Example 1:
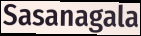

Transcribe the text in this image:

Sasanagala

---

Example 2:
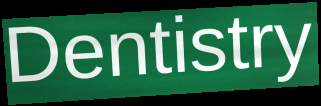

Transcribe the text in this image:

Dentistry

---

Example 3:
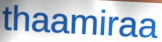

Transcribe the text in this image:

thaamiraa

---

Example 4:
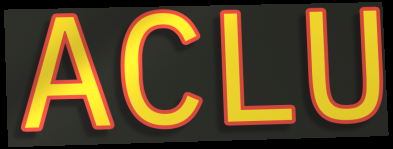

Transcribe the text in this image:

ACLU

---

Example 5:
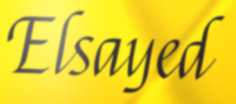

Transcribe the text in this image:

Elsayed